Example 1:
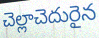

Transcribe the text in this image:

చెల్లాచెదురైన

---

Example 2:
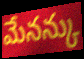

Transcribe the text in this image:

మేనన్కు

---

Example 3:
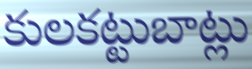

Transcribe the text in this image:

కులకట్టుబాట్లు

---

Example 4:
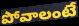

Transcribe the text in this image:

పోవాలంటే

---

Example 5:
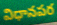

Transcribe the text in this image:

విధానపర